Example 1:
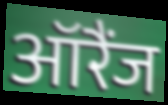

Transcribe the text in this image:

ऑरैंज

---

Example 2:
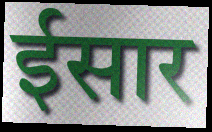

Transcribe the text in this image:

ईसार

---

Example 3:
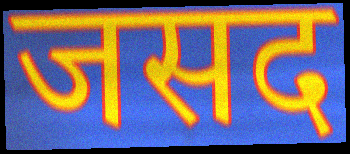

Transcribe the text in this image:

जसद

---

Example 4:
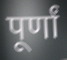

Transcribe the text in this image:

पूर्णां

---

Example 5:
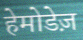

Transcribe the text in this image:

हेमोडेज़